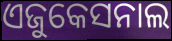
ଏଜୁକେସନାଲ